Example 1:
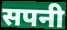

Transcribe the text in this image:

सपनी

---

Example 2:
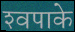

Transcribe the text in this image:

श्वपाके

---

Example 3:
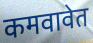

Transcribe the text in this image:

कमवावेत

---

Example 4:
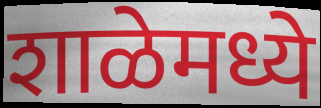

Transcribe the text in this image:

शाळेमध्ये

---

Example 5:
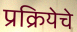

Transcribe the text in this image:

प्रक्रियेचे